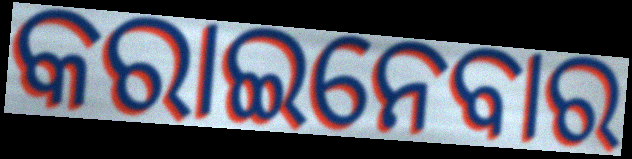
କରାଇନେବାର